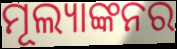
ମୂଲ୍ୟାଙ୍କନର